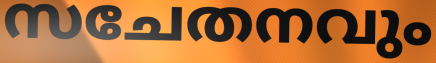
സചേതനവും